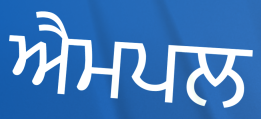
ਐਮਪਲ